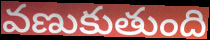
వణుకుతుంది